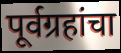
पूर्वग्रहांचा